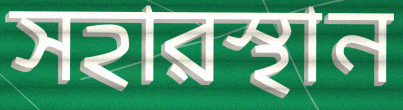
সহাৱস্থান